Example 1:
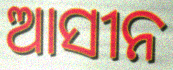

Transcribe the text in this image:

ଆସୀନ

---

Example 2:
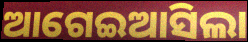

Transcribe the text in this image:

ଆଗେଇଆସିଲା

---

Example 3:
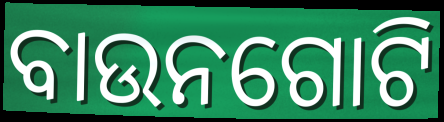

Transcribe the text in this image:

ବାଉନଗୋଟି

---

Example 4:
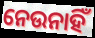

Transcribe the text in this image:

ନେଉନାହିଁ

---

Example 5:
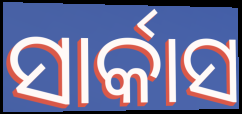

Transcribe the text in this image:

ସାର୍କାସ